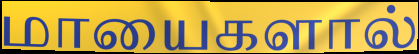
மாயைகளால்